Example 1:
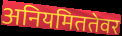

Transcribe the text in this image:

अनियमिततेवर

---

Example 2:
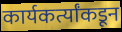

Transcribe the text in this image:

कार्यकर्त्यांकडून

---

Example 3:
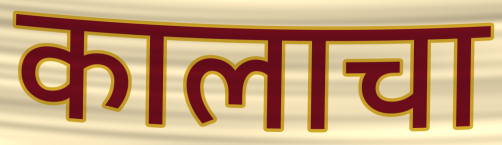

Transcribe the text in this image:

कालाचा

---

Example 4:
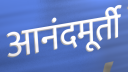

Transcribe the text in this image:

आनंदमूर्ती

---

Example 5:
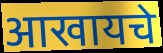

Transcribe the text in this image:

आखायचे